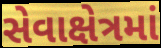
સેવાક્ષેત્રમાં